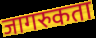
जागरुकता